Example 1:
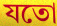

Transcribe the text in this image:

যতো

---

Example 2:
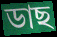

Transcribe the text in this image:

ডাছ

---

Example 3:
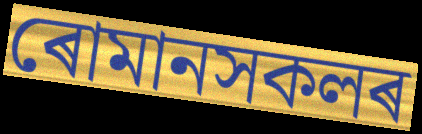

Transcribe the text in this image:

ৰোমানসকলৰ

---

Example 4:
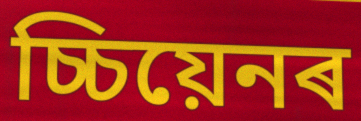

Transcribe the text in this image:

চ্চিয়েনৰ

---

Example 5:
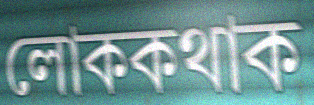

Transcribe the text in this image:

লোককথাক